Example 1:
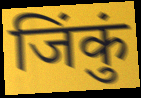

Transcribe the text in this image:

जिंकुं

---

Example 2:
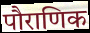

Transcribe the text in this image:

पौराणिक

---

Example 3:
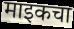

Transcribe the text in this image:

माइकचा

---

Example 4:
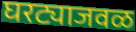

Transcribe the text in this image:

घरट्याजवळ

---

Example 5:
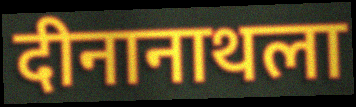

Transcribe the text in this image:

दीनानाथला